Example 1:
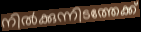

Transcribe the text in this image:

നിൽക്കുന്നിടത്തേക്ക്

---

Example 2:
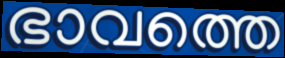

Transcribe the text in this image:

ഭാവത്തെ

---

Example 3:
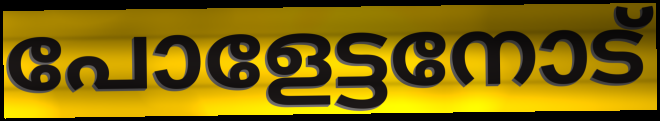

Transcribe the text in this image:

പോളേട്ടനോട്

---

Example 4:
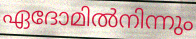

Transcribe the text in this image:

ഏദോമിൽനിന്നും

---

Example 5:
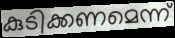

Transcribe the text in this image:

കുടിക്കണമെന്ന്